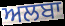
ਅਲਬਾ